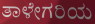
ತಾಳೇಗರಿಯ